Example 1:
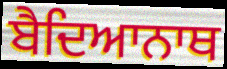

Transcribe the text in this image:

ਬੈਦਿਆਨਾਥ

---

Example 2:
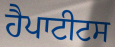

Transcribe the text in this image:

ਹੈਪਾਟੀਟਸ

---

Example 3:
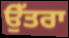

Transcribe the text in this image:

ਉੱਤਰਾ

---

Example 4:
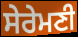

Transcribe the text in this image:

ਸੇਰੇਮਣੀ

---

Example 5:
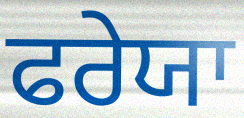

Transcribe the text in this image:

ਫਰੇਯਾ